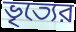
ভৃত্যের